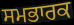
ਸਮਭਾਰਕ